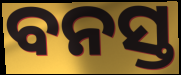
ବନସ୍ତ